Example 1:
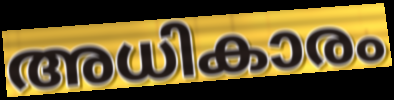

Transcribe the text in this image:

അധികാരം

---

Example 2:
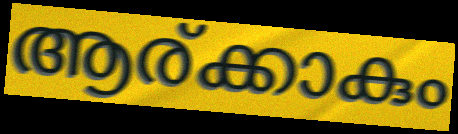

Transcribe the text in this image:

ആര്ക്കാകും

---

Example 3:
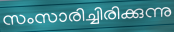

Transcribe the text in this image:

സംസാരിച്ചിരിക്കുന്നു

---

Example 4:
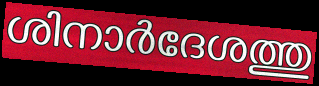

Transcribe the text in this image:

ശിനാർദേശത്തു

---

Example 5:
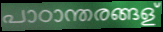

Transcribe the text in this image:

പാഠാന്തരങ്ങള്